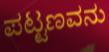
ಪಟ್ಟಣವನು